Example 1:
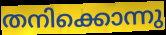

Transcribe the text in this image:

തനിക്കൊന്നു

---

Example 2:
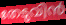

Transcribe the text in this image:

തേടുവിൻ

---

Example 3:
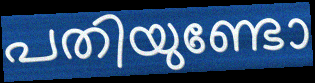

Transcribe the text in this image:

പതിയുണ്ടോ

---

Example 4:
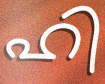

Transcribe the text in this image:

ഹി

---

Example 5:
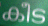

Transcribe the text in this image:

കീട